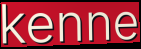
kenne